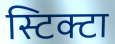
स्टिक्टा